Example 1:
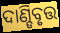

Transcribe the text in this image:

ଦାଣ୍ଡିବୃତ୍ତ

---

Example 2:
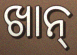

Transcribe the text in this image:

ଖାନ୍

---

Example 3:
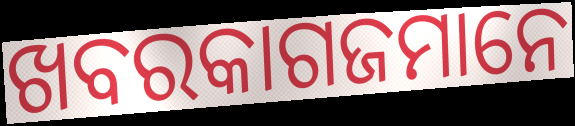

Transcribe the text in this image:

ଖବରକାଗଜମାନେ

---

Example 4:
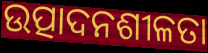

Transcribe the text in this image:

ଉତ୍ପାଦନଶୀଳତା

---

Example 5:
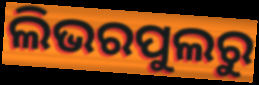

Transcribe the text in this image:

ଲିଭରପୁଲରୁ